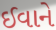
ઈવાને